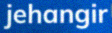
jehangir